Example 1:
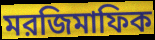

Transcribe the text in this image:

মরজিমাফিক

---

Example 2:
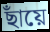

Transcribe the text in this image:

ছাঁয়ে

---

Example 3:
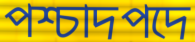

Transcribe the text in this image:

পশ্চাদপদে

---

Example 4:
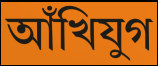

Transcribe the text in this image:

আঁখিযুগ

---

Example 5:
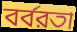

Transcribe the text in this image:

বর্বরতা